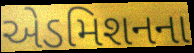
એડમિશનના